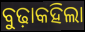
ବୁଢ଼ାକହିଲା